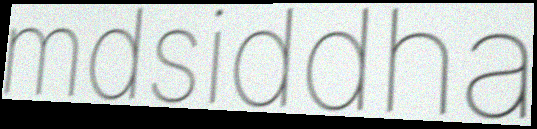
mdsiddha